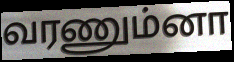
வரணும்னா